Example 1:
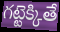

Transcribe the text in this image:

గట్టెక్కితే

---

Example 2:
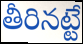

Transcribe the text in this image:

తీరినట్టే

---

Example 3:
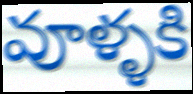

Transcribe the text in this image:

వూళ్ళకి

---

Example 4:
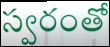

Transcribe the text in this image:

స్వరంతో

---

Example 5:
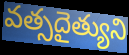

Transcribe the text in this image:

వత్సదైత్యుని